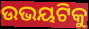
ଉଭୟଟିକୁ